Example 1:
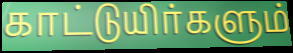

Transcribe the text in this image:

காட்டுயிர்களும்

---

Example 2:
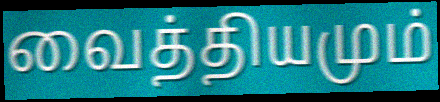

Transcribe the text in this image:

வைத்தியமும்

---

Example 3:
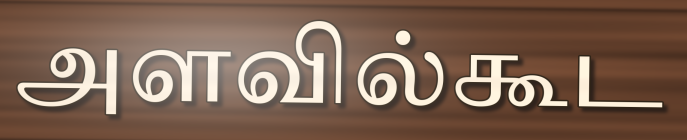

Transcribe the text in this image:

அளவில்கூட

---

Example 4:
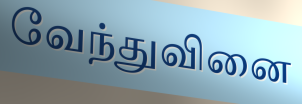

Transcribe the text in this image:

வேந்துவினை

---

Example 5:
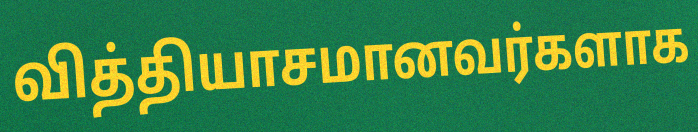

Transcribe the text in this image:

வித்தியாசமானவர்களாக